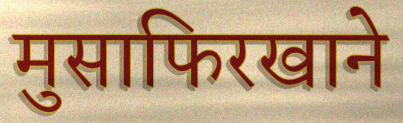
मुसाफिरखाने